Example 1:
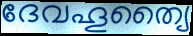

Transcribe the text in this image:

ദേവഹൂത്യൈ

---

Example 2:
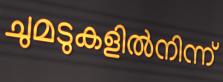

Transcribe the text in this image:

ചുമടുകളിൽനിന്ന്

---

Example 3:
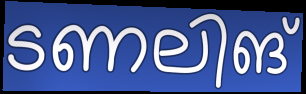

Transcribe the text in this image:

ടണലിങ്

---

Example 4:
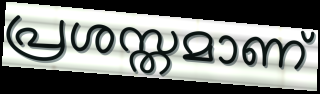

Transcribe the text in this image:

പ്രശസ്തമാണ്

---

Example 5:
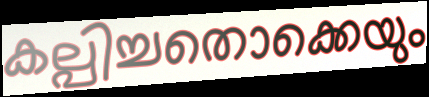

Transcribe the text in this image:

കല്പിച്ചതൊക്കെയും